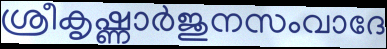
ശ്രീകൃഷ്ണാർജുനസംവാദേ